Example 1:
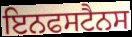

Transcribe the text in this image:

ਇਨਫਸਟੈਨਸ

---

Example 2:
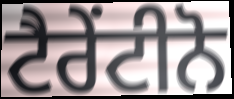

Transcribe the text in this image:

ਟੈਰੇਂਟੀਨੋ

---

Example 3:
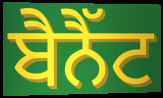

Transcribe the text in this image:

ਬੈਨੈੱਟ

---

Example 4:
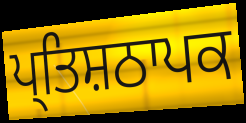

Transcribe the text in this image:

ਪ੍ਤਿਸ਼ਠਾਪਕ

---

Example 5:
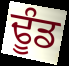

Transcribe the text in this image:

ਢੂੰਡ